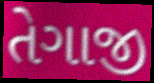
તેગાજી